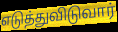
எடுத்துவிடுவார்